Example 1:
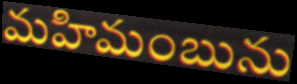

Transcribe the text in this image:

మహిమంబును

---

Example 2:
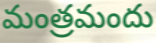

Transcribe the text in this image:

మంత్రమందు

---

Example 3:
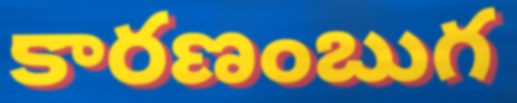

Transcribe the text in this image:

కారణంబుగ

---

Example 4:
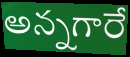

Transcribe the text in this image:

అన్నగారే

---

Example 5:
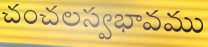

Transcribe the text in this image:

చంచలస్వభావము